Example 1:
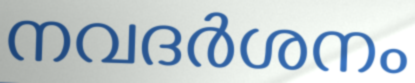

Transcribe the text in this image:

നവദർശനം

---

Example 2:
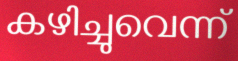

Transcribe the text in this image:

കഴിച്ചുവെന്ന്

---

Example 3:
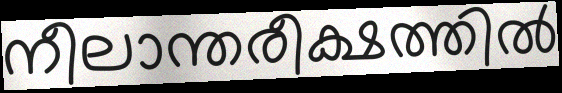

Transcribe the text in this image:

നീലാന്തരീക്ഷത്തിൽ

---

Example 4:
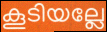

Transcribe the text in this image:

കൂടിയല്ലേ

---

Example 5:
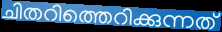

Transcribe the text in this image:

ചിതറിത്തെറിക്കുന്നത്